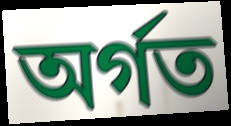
অৰ্গত